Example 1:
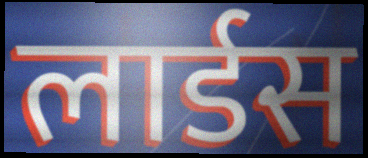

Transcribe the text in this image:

लार्डस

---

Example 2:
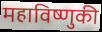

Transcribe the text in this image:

महाविष्णुकी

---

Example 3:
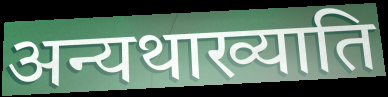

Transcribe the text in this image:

अन्यथाख्याति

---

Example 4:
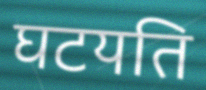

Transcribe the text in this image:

घटयति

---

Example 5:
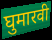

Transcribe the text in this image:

घुमारवी